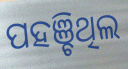
ପହଞ୍ଚିଥିଲ